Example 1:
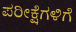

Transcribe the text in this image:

ಪರೀಕ್ಷೆಗಳಿಗೆ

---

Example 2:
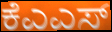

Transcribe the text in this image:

ಕೆಎಎಸ್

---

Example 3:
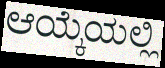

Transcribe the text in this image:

ಆಯ್ಕೆಯಲ್ಲಿ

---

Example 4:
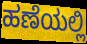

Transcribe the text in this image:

ಹಣೆಯಲ್ಲಿ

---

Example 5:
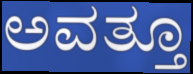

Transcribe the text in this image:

ಅವತ್ತೂ